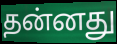
தன்னது